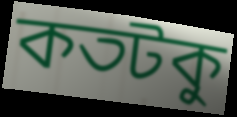
কতটকু